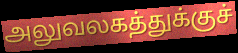
அலுவலகத்துக்குச்